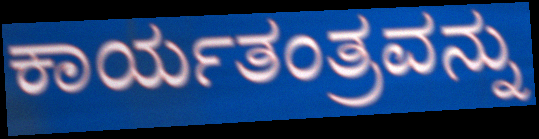
ಕಾರ್ಯತಂತ್ರವನ್ನು